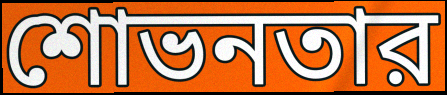
শোভনতার